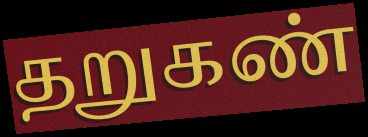
தறுகண்